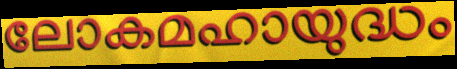
ലോകമഹായുദ്ധം